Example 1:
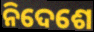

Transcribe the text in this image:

ନିଦେଶେ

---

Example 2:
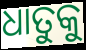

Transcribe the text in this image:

ଧାତୁକୁ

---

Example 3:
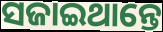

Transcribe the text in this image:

ସଜାଇଥାନ୍ତେ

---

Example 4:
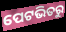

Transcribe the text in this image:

ପେଟଭିତରୁ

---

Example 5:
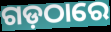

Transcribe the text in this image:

ଗଡ଼ଠାରେ